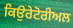
ਕਿਉਰੇਟੋਰੀਅਲ